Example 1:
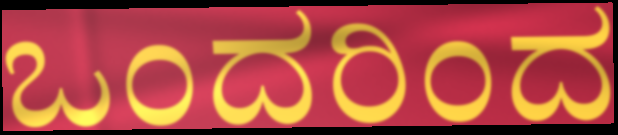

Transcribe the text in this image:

ಒಂದರಿಂದ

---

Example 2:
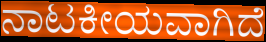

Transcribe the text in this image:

ನಾಟಕೀಯವಾಗಿದೆ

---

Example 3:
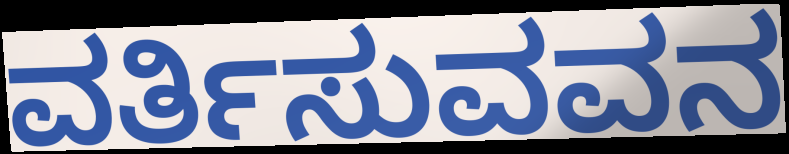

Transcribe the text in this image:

ವರ್ತಿಸುವವನ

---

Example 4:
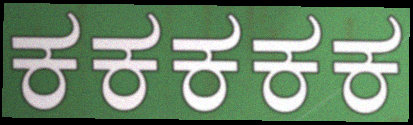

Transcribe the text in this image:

ಕಕಕಕಕ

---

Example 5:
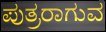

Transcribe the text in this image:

ಪುತ್ರರಾಗುವ